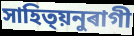
সাহিত্য়নুৰাগী